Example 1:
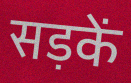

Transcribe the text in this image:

सड़कें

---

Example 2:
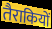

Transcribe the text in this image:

तैराकियों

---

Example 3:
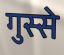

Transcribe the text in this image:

गुस्से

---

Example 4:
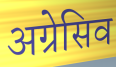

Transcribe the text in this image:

अग्रेसिव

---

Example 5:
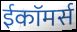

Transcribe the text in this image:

ईकॉमर्स